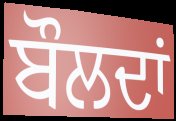
ਬੌਲਦਾਂ